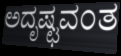
ಅದೃಷ್ಟವಂತ